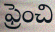
ఫ్రెంచి